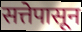
सत्तेपासून